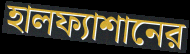
হালফ্যাশানের